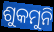
ଶୁକମୁନି